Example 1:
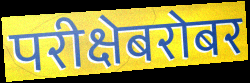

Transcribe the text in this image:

परीक्षेबरोबर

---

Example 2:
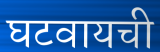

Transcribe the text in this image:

घटवायची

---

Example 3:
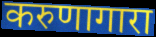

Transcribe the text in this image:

करुणागारा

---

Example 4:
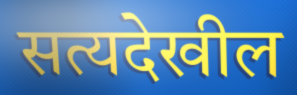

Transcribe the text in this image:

सत्यदेखील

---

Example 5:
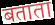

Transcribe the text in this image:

बताता